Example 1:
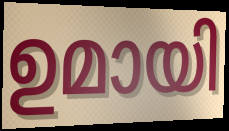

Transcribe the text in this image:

ഉമായി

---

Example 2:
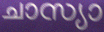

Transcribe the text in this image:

ചാസ്യാ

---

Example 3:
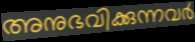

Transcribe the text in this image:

അനുഭവിക്കുന്നവർ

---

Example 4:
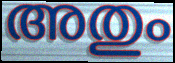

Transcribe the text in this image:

അതും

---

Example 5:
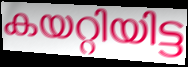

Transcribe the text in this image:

കയറ്റിയിട്ട